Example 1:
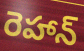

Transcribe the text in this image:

రెహాన్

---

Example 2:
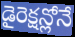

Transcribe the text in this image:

డైరెక్షన్లోనే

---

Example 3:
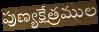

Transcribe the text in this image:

పుణ్యక్షేత్రముల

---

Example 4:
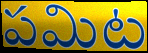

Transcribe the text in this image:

పమిట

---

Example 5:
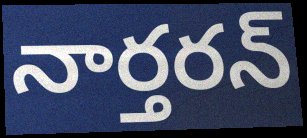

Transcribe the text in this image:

నార్తరన్